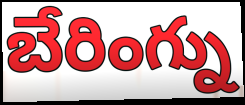
బేరింగ్ను